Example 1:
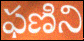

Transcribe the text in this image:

ఫణిని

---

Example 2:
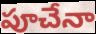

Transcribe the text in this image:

పూచేనా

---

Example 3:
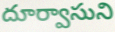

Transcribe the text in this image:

దూర్వాసుని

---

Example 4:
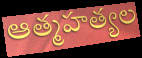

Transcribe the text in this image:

ఆత్మహత్యల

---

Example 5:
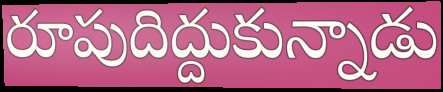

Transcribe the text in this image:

రూపుదిద్దుకున్నాడు